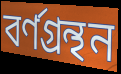
বর্ণগ্রন্থন